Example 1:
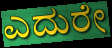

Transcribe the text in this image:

ಎದುರೇ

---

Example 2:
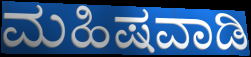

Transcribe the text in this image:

ಮಹಿಷವಾಡಿ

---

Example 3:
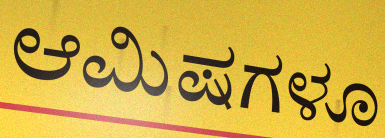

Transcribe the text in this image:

ಆಮಿಷಗಳೂ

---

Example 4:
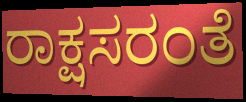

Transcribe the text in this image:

ರಾಕ್ಷಸರಂತೆ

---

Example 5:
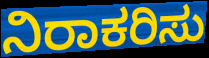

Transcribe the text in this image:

ನಿರಾಕರಿಸು